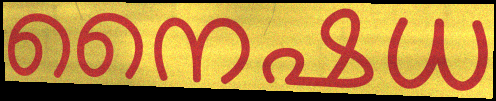
നൈഷധ